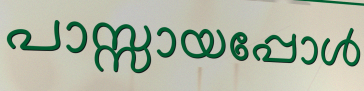
പാസ്സായപ്പോൾ